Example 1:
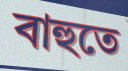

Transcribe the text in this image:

বাহুতে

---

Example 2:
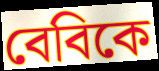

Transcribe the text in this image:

বেবিকে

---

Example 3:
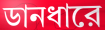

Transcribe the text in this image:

ডানধারে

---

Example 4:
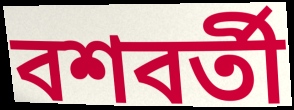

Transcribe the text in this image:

বশবর্তী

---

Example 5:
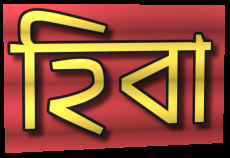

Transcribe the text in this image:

হিবা